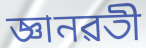
জ্ঞানৱতী